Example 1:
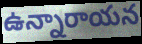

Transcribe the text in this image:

ఉన్నారాయన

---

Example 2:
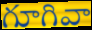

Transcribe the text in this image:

గూగివా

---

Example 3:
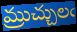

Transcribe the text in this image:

మ్రుచ్చులఁ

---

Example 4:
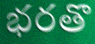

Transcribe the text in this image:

భరతొ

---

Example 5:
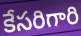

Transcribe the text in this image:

కేసరిగారి